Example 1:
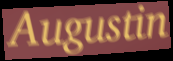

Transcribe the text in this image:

Augustin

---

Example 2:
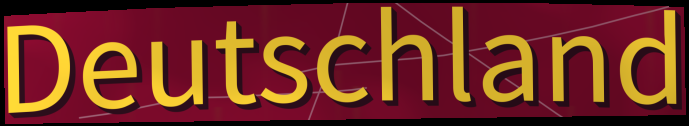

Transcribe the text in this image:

Deutschland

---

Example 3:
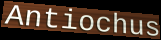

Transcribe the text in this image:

Antiochus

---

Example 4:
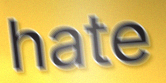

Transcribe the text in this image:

hate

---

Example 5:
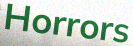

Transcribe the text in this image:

Horrors